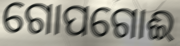
ଗୋପଗୋଈ